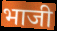
भाजी